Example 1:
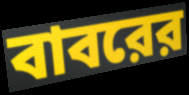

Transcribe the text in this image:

বাবরের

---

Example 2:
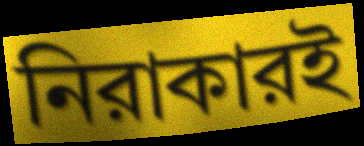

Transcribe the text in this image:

নিরাকারই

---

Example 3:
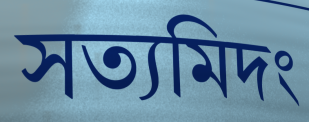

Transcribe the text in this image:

সত্যমিদং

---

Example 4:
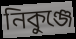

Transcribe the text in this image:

নিকুঞ্জে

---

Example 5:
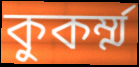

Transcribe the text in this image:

কুকর্ম্ম